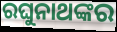
ରଘୁନାଥଙ୍କର